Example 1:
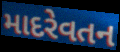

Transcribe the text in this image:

માદરેવતન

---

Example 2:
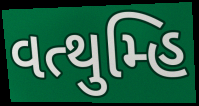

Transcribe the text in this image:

વત્થુમ્હિ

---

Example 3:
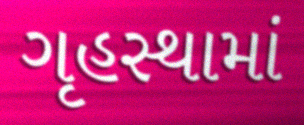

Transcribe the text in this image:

ગૃહસ્થામાં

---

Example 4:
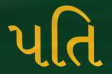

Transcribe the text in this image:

પતિ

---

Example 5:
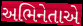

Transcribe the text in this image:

અભિનેતાએ